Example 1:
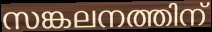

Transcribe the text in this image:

സങ്കലനത്തിന്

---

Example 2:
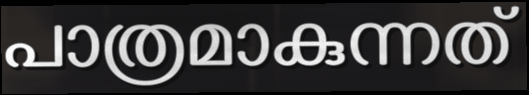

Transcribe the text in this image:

പാത്രമാകുന്നത്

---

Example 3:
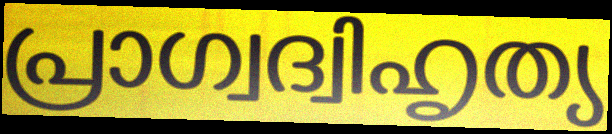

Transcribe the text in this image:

പ്രാഗ്വദ്വിഹൃത്യ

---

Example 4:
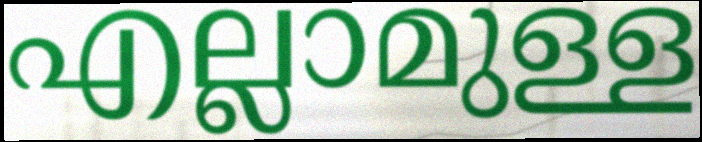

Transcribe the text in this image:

എല്ലാമുള്ള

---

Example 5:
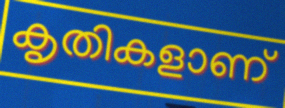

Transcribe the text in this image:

കൃതികളാണ്